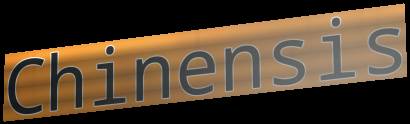
Chinensis